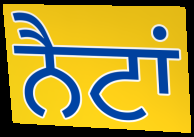
ਨੈਟਾਂ